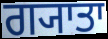
ਗ੍ਯਾਤਾ